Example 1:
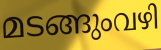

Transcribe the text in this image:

മടങ്ങുംവഴി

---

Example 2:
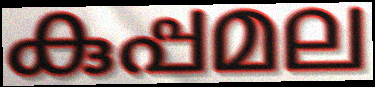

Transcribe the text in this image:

കുപ്പമല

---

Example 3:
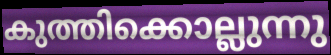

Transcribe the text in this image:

കുത്തിക്കൊല്ലുന്നു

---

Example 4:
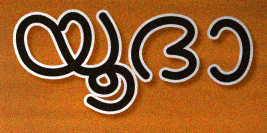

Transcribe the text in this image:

യൂദാ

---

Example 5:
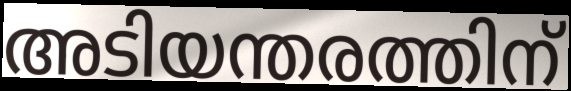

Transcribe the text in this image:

അടിയന്തരത്തിന്